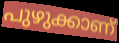
പുഴുക്കാണ്